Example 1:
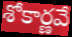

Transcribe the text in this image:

శోకార్ణవే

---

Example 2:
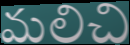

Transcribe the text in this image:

మలిచి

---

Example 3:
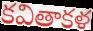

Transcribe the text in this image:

కవితాకళ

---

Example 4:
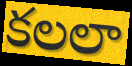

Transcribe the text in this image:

కలలా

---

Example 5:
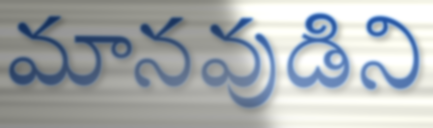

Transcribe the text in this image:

మానవుడిని